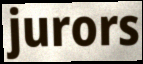
jurors